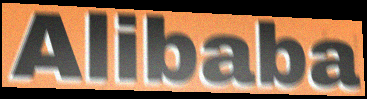
Alibaba